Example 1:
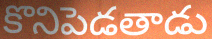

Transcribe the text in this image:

కొనిపెడతాడు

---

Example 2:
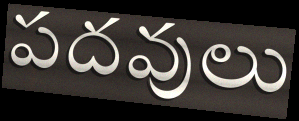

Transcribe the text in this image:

పదవులు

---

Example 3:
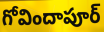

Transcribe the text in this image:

గోవిందాపూర్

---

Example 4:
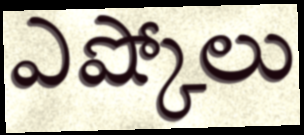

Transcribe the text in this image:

ఎష్కోలు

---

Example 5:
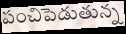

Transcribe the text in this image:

పంచిపెడుతున్న